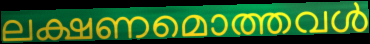
ലക്ഷണമൊത്തവൾ